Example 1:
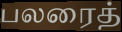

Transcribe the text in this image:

பலரைத்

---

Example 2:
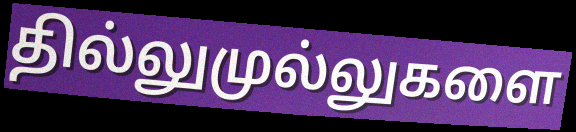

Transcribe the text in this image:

தில்லுமுல்லுகளை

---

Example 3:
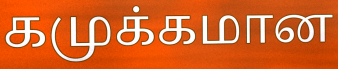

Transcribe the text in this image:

கமுக்கமான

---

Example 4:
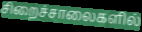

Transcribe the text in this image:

சிறைச்சாலைகளில்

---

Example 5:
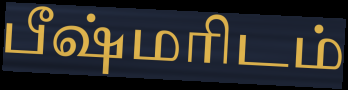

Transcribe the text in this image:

பீஷ்மரிடம்